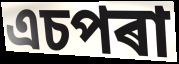
এচপৰা